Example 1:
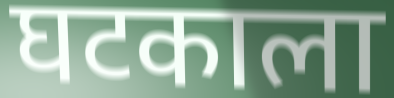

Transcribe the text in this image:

घटकाला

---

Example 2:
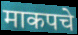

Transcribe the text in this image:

माकपचे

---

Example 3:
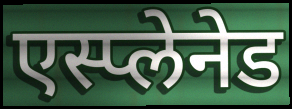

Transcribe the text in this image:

एस्प्लेनेड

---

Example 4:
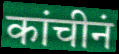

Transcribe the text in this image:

कांचीनं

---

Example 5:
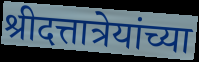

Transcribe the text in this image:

श्रीदत्तात्रेयांच्या